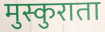
मुस्कुराता